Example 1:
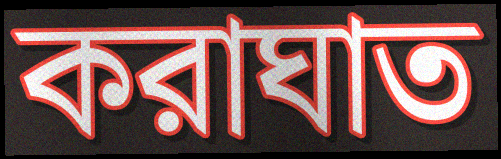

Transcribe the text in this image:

করাঘাত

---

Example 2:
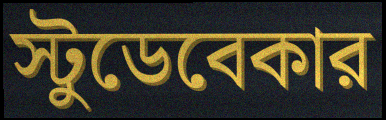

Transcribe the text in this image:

স্টুডেবেকার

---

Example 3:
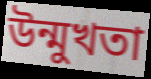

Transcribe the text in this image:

উন্মুখতা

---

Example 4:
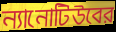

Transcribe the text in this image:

ন্যানোটিউবের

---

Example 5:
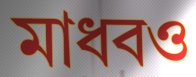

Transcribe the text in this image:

মাধবও